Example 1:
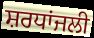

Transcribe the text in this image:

ਸ਼ਰਧਾਂਜਲੀ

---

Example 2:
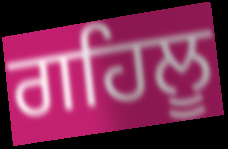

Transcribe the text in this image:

ਗਹਿਲੂ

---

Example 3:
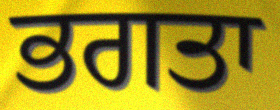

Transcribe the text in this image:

ਭਗਤਾ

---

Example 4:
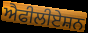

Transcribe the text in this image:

ਐਫੀਲੀਏਸ਼ਨ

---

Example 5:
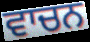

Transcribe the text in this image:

ਵਾਚਨ